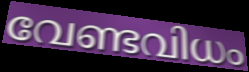
വേണ്ടവിധം